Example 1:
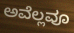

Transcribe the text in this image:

ಅವೆಲ್ಲವೂ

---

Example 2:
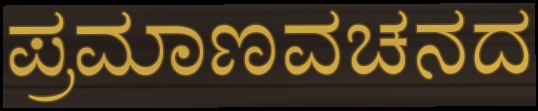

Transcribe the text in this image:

ಪ್ರಮಾಣವಚನದ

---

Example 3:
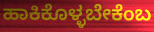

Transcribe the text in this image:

ಹಾಕಿಕೊಳ್ಳಬೇಕೆಂಬ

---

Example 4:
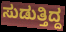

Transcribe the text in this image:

ಸುಡುತ್ತಿದ್ದ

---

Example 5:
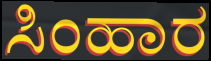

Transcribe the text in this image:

ಸಿಂಹಾರ